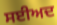
ਸਈਅਦ